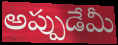
అప్పుడేమీ